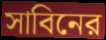
সাবিনের